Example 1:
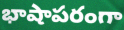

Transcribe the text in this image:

భాషాపరంగా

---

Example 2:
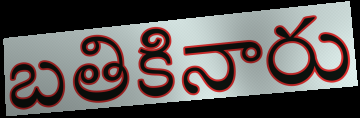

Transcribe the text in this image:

బతికినారు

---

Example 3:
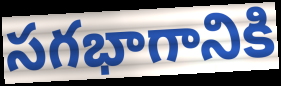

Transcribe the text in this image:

సగభాగానికి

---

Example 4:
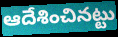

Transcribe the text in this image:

ఆదేశించినట్టు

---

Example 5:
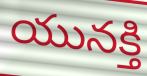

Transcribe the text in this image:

యునక్తి